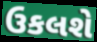
ઉકલશે